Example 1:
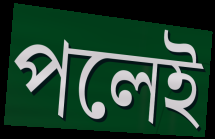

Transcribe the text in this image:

পলেই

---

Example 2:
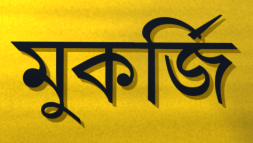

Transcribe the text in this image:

মুকর্জি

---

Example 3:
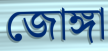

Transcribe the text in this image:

জোঙ্গা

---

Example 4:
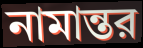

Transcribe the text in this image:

নামান্তর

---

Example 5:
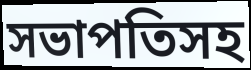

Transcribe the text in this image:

সভাপতিসহ